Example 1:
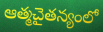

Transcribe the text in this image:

ఆత్మచైతన్యంలో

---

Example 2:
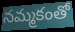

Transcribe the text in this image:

నమ్మకంతో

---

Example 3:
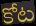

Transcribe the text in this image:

కోట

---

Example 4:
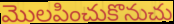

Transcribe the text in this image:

మొలపించుకొనుచు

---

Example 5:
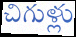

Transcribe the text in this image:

చిగుళ్లు